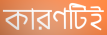
কারণটিই